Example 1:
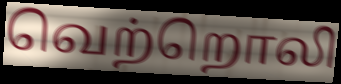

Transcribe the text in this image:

வெற்றொலி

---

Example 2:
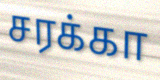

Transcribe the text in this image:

சரக்கா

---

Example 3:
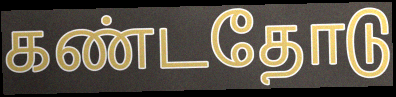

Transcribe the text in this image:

கண்டதோடு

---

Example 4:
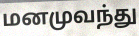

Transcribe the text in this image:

மனமுவந்து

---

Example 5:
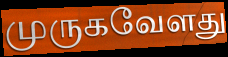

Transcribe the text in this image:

முருகவேளது